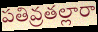
పతివ్రతల్లారా